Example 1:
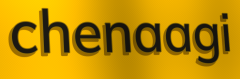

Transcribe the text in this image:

chenaagi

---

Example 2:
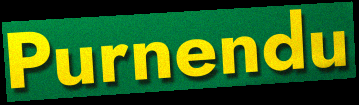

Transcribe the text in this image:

Purnendu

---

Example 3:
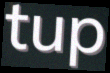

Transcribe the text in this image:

tup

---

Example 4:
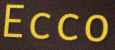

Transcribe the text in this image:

Ecco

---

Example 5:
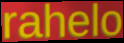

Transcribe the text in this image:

rahelo